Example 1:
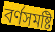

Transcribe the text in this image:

বর্ণসমষ্টি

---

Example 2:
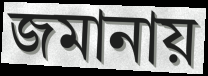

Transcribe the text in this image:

জমানায়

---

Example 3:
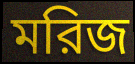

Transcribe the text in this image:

মরিজ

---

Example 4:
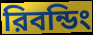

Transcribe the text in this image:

রিবন্ডিং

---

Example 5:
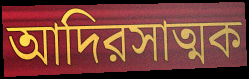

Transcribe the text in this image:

আদিরসাত্মক